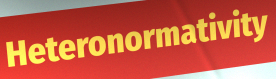
Heteronormativity